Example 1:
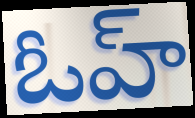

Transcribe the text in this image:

ఓహ్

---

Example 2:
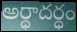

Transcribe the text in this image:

అర్ధాదర్ధం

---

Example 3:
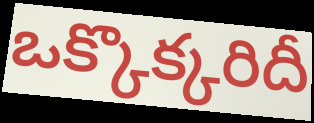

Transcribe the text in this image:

ఒక్కొక్కరిదీ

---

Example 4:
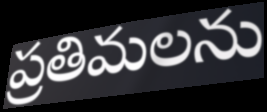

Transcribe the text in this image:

ప్రతిమలను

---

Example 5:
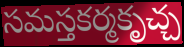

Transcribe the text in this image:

సమస్తకర్మకృచ్చ